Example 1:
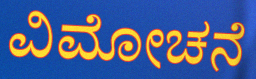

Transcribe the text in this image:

ವಿಮೋಚನೆ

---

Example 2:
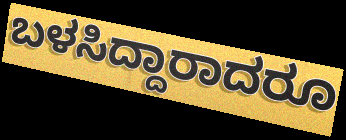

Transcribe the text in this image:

ಬಳಸಿದ್ದಾರಾದರೂ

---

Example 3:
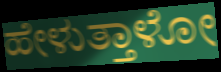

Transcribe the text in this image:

ಹೇಳುತ್ತಾಳೋ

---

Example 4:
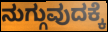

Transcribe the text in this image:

ನುಗ್ಗುವುದಕ್ಕೆ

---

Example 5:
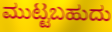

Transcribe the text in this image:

ಮುಟ್ಟಬಹುದು